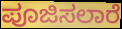
ಪೂಜಿಸಲಾರೆ